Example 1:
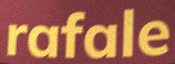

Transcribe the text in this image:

rafale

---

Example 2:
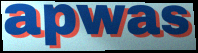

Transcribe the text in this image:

apwas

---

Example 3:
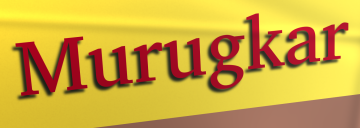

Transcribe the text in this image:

Murugkar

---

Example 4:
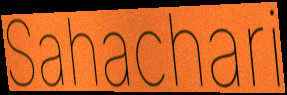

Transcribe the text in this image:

Sahachari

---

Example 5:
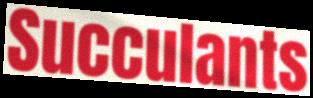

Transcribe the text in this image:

Succulants